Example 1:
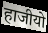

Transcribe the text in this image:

हाजीयो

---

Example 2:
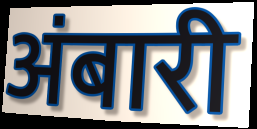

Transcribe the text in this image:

अंबारी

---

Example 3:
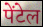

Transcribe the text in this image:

पेंटेल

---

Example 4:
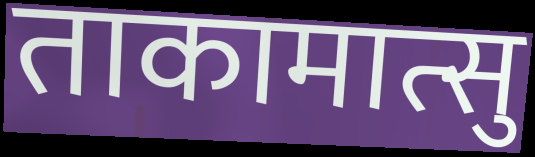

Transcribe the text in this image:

ताकामात्सु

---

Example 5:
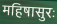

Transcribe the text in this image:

महिषासुरः